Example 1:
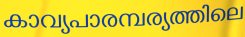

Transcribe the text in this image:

കാവ്യപാരമ്പര്യത്തിലെ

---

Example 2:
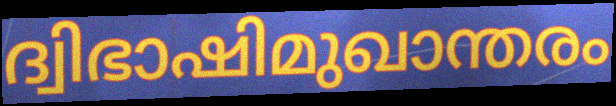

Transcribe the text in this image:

ദ്വിഭാഷിമുഖാന്തരം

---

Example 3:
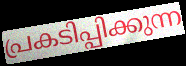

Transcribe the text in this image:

പ്രകടിപ്പിക്കുന്ന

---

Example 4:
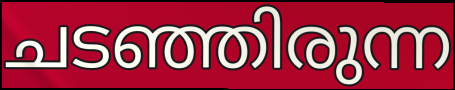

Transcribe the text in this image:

ചടഞ്ഞിരുന്ന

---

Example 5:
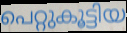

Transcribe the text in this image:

പെറ്റുകൂട്ടിയ